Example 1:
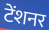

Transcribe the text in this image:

टेंशनर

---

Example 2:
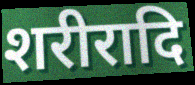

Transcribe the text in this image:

शरीरादि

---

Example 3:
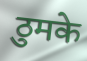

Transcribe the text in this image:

ठुमके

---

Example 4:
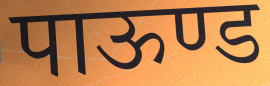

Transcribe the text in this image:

पाऊण्ड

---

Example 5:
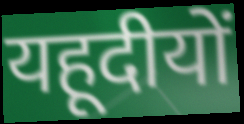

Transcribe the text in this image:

यहूदीयों